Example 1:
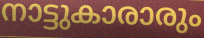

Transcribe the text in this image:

നാട്ടുകാരാരും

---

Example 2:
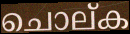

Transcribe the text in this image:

ചൊല്ക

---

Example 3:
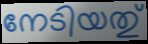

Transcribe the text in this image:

നേടിയതു്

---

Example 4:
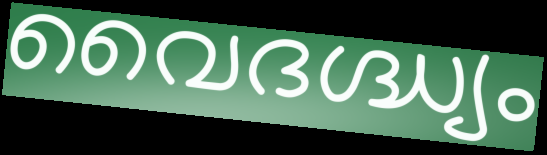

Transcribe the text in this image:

വൈദഗ്ദ്ധ്യം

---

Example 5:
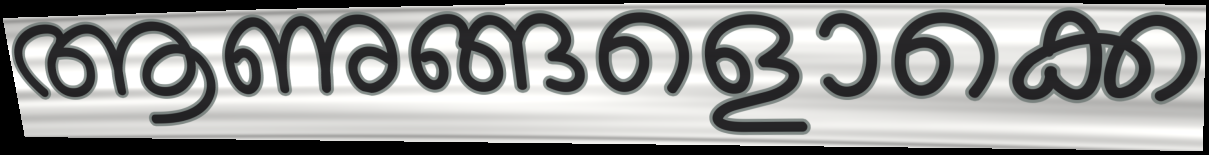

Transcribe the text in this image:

ആണുങ്ങളൊക്കെ